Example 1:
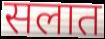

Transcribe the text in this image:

सलात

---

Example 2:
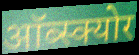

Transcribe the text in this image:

ऑब्स्क्योर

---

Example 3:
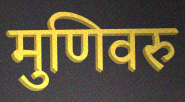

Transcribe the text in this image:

मुणिवरु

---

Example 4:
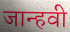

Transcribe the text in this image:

जान्हवी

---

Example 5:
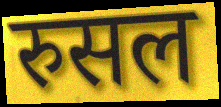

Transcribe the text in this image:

रुसल